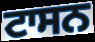
ਟਾਸਨ